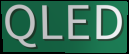
QLED